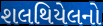
શલથિયેલનો